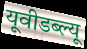
यूवीडब्ल्यू